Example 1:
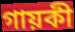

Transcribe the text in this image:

গায়কী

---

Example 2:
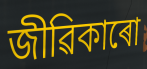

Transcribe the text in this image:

জীৱিকাৰো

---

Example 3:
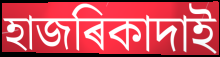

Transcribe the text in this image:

হাজৰিকাদাই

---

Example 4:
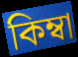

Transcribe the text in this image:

কিম্বা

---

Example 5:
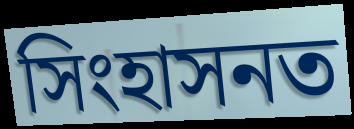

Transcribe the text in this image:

সিংহাসনত